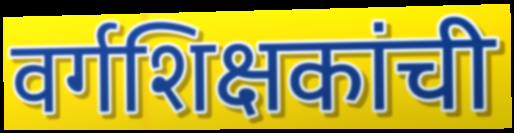
वर्गशिक्षकांची